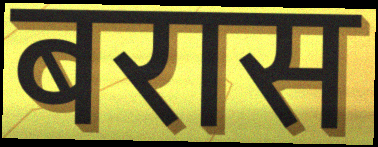
बरास